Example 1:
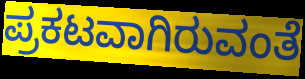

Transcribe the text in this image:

ಪ್ರಕಟವಾಗಿರುವಂತೆ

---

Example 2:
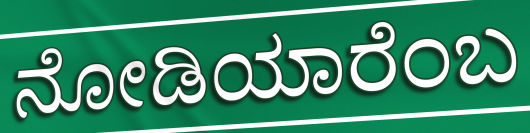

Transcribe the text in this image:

ನೋಡಿಯಾರೆಂಬ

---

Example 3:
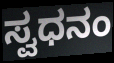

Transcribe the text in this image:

ಸ್ವಧನಂ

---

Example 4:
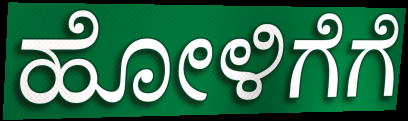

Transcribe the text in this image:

ಹೋಳಿಗೆಗೆ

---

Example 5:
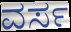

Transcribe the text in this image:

ವರ್ಸ